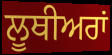
ਲੂਥੀਅਰਾਂ